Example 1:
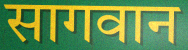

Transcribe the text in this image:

सागवान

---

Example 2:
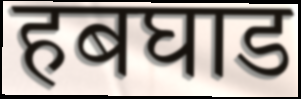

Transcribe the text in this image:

हबघाड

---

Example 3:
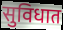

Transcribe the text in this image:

सुविधात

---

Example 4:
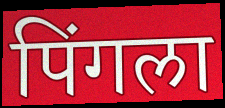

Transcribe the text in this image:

पिंगला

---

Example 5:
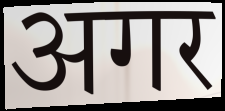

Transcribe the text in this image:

अगर